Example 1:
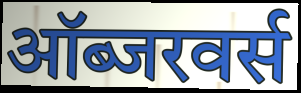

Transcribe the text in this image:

ऑब्जरवर्स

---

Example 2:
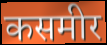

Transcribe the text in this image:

कसमीर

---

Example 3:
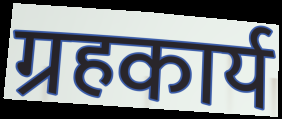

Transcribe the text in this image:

ग्रहकार्य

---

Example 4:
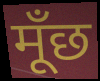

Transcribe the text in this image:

मूँछ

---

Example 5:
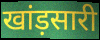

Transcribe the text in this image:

खांड़सारी